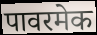
पावरमेक